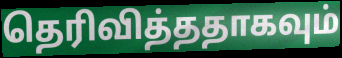
தெரிவித்ததாகவும்